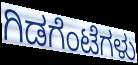
ಗಿಡಗೆಂಟೆಗಳು